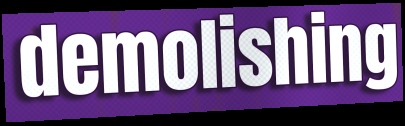
demolishing